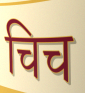
चिच